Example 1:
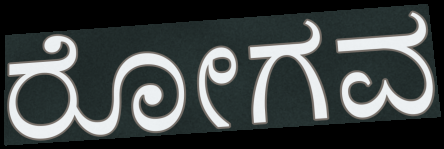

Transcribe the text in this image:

ರೋಗವ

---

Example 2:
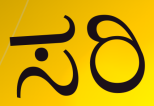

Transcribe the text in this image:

ಸರಿ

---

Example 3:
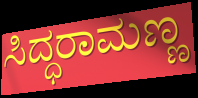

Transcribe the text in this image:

ಸಿದ್ಧರಾಮಣ್ಣ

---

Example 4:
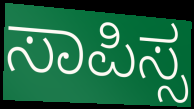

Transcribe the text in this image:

ಸಾಪಿಸ್ಸ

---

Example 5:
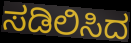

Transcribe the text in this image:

ಸಡಿಲಿಸಿದ